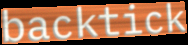
backtick